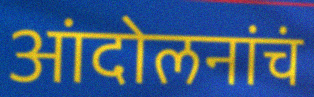
आंदोलनांचं